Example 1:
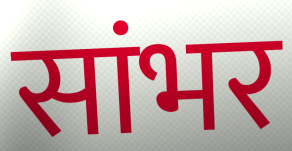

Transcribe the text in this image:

सांभर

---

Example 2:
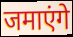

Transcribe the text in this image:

जमाएंगे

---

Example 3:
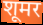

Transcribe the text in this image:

शूमर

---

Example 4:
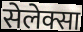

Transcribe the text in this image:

सेलेक्सा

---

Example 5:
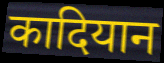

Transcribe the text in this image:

कादियान